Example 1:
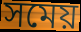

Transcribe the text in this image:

সমেয়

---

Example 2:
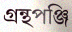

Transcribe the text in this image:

গ্রন্থপঞ্জি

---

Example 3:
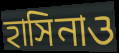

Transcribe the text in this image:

হাসিনাও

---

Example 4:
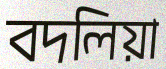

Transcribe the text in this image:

বদলিয়া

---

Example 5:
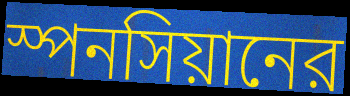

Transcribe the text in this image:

স্পনসিয়ানের